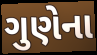
ગુણેના